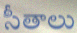
సీతాలు